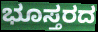
ಭೂಸ್ತರದ